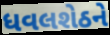
ધવલશેઠને